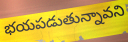
భయపడుతున్నావని